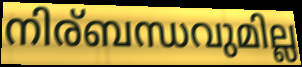
നിര്ബന്ധവുമില്ല